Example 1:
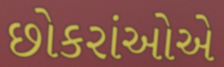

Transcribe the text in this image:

છોકરાંઓએ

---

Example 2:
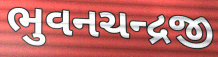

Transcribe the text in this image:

ભુવનચન્દ્રજી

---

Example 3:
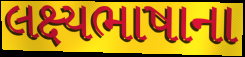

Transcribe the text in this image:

લક્ષ્યભાષાના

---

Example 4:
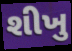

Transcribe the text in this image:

શીખુ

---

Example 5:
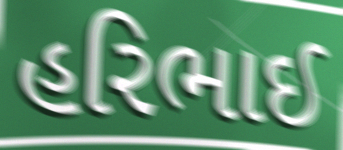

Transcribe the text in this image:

હરિભાઈ